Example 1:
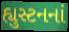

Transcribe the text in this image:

હ્યુસ્ટનનાં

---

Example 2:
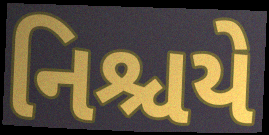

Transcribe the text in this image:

નિશ્ચયે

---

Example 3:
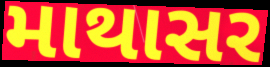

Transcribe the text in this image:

માથાસર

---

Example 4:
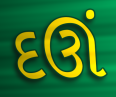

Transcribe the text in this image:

દઊં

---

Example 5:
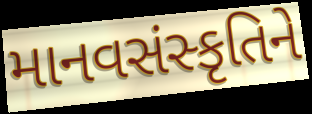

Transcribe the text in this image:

માનવસંસ્કૃતિને